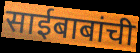
साईबाबांची